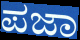
ಪಜಾ